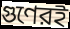
গুণেরই